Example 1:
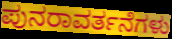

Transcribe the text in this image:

ಪುನರಾವರ್ತನೆಗಳು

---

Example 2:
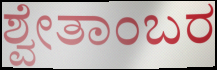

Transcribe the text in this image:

ಶ್ವೇತಾಂಬರ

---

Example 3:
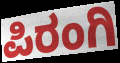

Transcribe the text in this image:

ಪಿರಂಗಿ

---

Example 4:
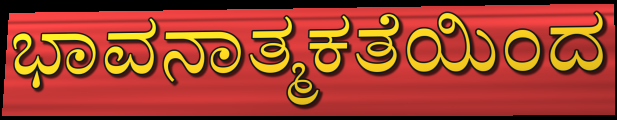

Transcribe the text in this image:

ಭಾವನಾತ್ಮಕತೆಯಿಂದ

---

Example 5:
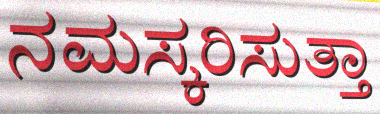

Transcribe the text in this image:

ನಮಸ್ಕರಿಸುತ್ತಾ